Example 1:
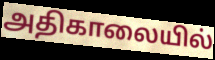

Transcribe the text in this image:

அதிகாலையில்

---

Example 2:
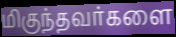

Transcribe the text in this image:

மிகுந்தவர்களை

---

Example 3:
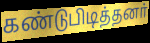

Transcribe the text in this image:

கண்டுபிடித்தனர்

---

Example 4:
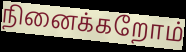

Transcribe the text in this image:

நினைக்கறோம்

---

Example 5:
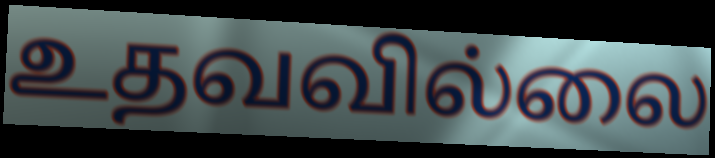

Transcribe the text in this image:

உதவவில்லை